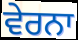
ਵੇਰਨਾ